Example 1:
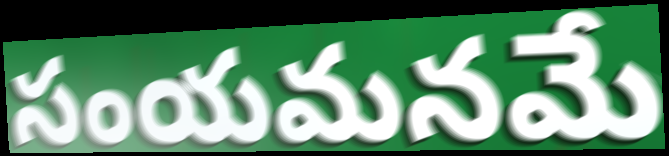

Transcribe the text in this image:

సంయమనమే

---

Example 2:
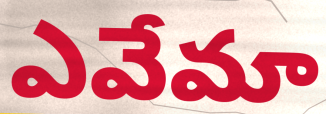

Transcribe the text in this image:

ఎవేమా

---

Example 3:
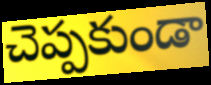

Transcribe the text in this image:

చెప్పకుండా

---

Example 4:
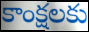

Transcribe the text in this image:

కాంక్షలకు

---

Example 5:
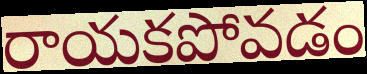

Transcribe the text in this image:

రాయకపోవడం